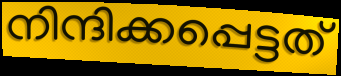
നിന്ദിക്കപ്പെട്ടത്